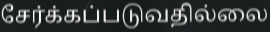
சேர்க்கப்படுவதில்லை